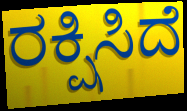
ರಕ್ಷಿಸಿದೆ